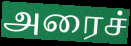
அரைச்